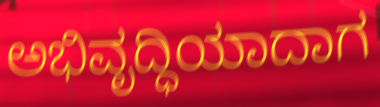
ಅಭಿವೃದ್ಧಿಯಾದಾಗ